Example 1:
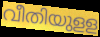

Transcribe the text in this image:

വീതിയുളള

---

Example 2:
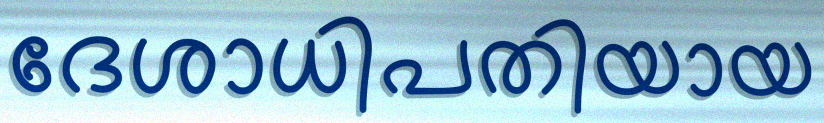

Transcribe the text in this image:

ദേശാധിപതിയായ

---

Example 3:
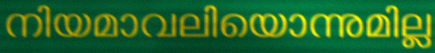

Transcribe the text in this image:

നിയമാവലിയൊന്നുമില്ല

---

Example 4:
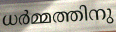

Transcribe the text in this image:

ധർമ്മത്തിനു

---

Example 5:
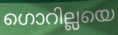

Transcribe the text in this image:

ഗൊറില്ലയെ